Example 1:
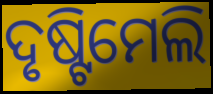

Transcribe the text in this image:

ଦୃଷ୍ଟିମେଲି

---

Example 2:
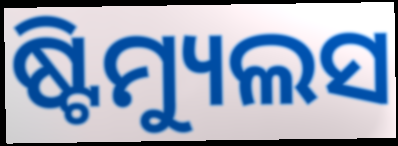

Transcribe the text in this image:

ଷ୍ଟିମ୍ୟୁଲସ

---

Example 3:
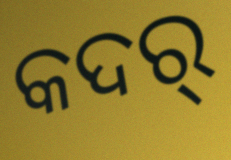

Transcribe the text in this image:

କଦର୍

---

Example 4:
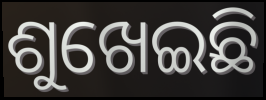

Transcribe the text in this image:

ଶୁଖେଇଛି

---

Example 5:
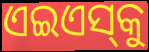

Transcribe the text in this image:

ଏଇଏସ୍‌କୁ